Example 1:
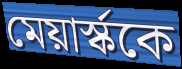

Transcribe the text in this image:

মেয়ার্স্ককে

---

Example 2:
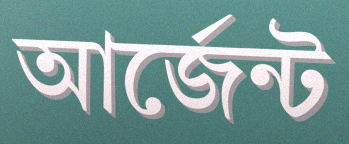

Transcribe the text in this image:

আর্জেন্ট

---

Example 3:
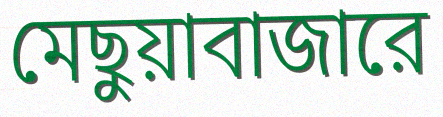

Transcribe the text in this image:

মেছুয়াবাজারে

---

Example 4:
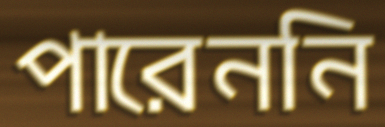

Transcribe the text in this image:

পারেননি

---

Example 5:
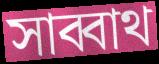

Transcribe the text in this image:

সাব্বাথ